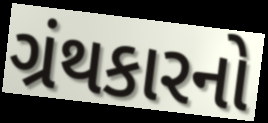
ગ્રંથકારનો